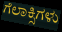
ಗೆಲಾಕ್ಸಿಗಳು